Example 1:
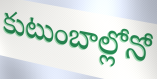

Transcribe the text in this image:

కుటుంబాల్లోనో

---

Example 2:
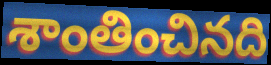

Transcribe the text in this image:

శాంతించినది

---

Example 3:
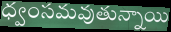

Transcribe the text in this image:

ధ్వంసమవుతున్నాయి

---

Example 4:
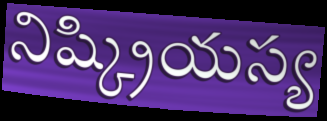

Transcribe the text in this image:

నిష్క్రియస్య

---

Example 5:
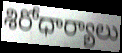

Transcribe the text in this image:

శిరోధార్యాలు